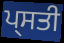
ਪ੍ਸਤੀ